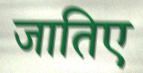
जातिए